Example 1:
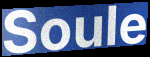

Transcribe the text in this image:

Soule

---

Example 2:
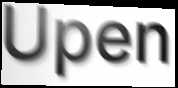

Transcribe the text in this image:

Upen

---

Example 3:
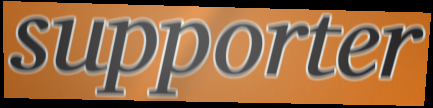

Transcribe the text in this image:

supporter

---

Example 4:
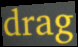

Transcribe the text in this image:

drag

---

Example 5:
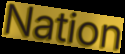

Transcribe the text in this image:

Nation